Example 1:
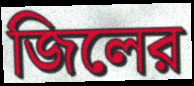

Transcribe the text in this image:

জিলের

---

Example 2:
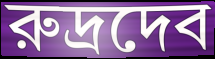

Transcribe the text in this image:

রুদ্রদেব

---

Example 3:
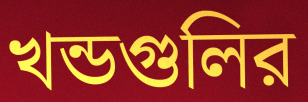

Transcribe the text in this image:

খন্ডগুলির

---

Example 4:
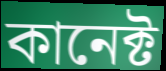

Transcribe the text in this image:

কানেক্ট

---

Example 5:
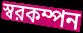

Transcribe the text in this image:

স্বরকম্পন